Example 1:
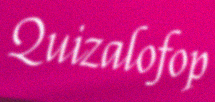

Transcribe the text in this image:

Quizalofop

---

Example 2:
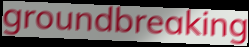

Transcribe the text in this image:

groundbreaking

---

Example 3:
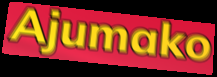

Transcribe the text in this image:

Ajumako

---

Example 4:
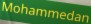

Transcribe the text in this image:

Mohammedan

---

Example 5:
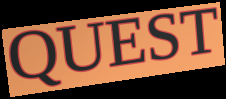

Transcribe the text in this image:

QUEST